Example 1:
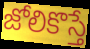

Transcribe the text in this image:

జోలికొస్తే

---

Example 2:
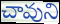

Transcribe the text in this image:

చావుని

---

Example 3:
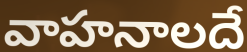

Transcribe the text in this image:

వాహనాలదే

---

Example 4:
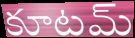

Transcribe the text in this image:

కూటమ్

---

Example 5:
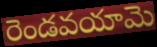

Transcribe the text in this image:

రెండవయామె